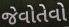
જેવોતેવો